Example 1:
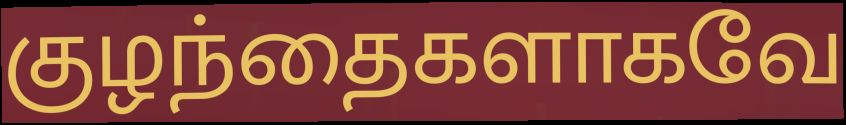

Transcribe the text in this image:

குழந்தைகளாகவே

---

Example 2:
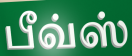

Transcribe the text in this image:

பீவ்ஸ்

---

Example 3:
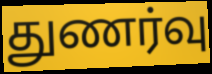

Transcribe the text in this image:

துணர்வு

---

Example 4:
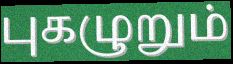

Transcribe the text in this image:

புகழுறும்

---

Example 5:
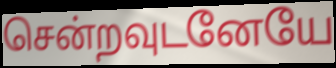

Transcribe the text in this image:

சென்றவுடனேயே